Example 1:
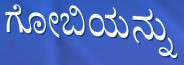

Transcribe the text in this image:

ಗೋಬಿಯನ್ನು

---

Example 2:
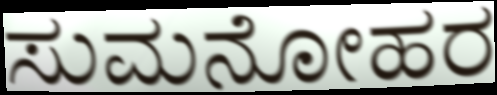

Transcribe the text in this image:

ಸುಮನೋಹರ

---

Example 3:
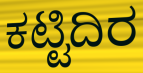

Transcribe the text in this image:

ಕಟ್ಟಿದಿರ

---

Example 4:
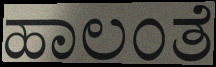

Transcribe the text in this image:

ಹಾಲಂತೆ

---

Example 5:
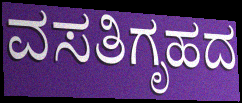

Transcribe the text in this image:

ವಸತಿಗೃಹದ